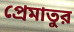
প্রেমাতুর